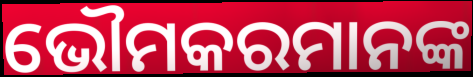
ଭୌମକରମାନଙ୍କ